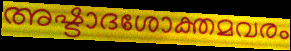
അഷ്ടാദശോക്തമവരം